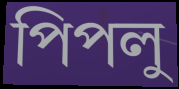
পিপলু